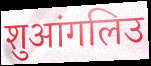
शुआंगलिउ